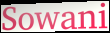
Sowani